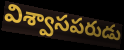
విశ్వాసపరుడు